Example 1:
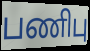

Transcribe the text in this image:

பணிபு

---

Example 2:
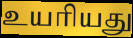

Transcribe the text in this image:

உயரியது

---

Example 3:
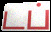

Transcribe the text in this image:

டப்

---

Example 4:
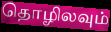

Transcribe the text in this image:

தொழிலவும்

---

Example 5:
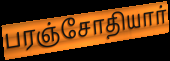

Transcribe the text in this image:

பரஞ்சோதியார்